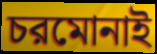
চরমোনাই